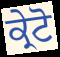
ਕ੍ਰੇਟੋ